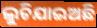
ଲୁଚିଯାଇଅଛି